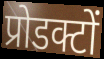
प्रोडक्टों